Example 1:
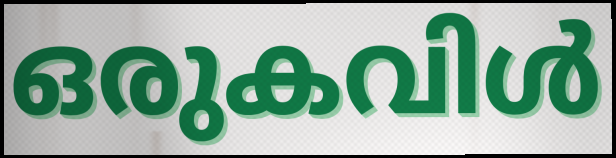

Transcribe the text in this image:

ഒരുകവിൾ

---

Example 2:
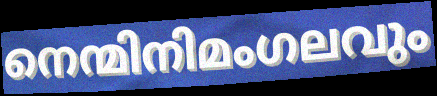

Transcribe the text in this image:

നെന്മിനിമംഗലവും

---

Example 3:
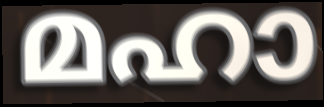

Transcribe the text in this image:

മഹാ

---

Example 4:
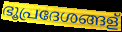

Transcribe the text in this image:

ഭൂപ്രദേശങ്ങള്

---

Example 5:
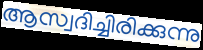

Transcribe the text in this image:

ആസ്വദിച്ചിരിക്കുന്നു